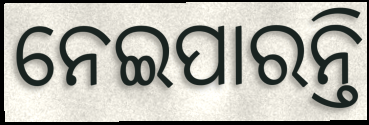
ନେଇପାରନ୍ତି